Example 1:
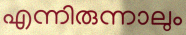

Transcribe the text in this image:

എന്നിരുന്നാലും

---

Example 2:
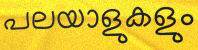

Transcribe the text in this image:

പലയാളുകളും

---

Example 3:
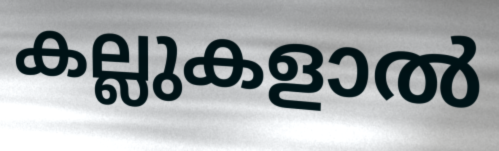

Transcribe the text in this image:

കല്ലുകളാൽ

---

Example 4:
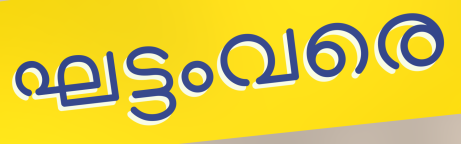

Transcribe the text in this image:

ഘട്ടംവരെ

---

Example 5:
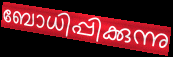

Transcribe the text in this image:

ബോധിപ്പിക്കുന്നു